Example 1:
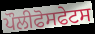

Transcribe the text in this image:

ਪੌਲੀਫੋਸਫੇਟਸ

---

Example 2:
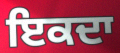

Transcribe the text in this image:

ਇਕਦਾ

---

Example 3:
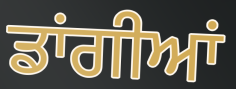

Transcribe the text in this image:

ਡਾਂਗੀਆਂ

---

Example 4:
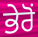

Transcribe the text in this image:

ਭੇਰੋਂ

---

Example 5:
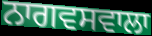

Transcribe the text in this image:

ਨਾਗਵਸਵਾਲਾ